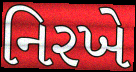
નિરખે